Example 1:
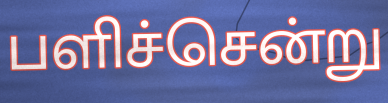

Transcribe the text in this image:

பளிச்சென்று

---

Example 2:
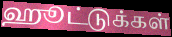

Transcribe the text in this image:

ஹூட்டுக்கள்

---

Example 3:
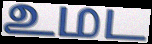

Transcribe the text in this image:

உமட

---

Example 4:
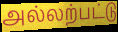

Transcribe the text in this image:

அல்லற்பட்டு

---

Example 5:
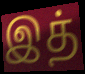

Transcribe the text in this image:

இத்